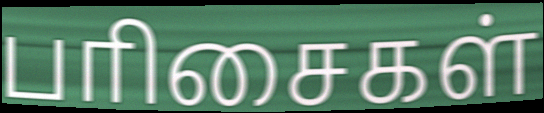
பரிசைகள்